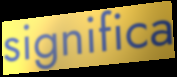
significa